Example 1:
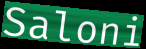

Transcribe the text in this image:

Saloni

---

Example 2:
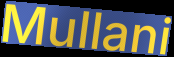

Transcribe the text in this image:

Mullani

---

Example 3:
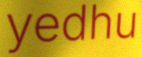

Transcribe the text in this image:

yedhu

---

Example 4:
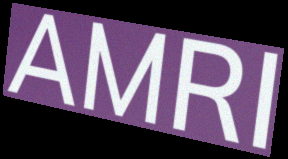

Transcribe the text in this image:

AMRI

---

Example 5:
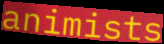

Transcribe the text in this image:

animists